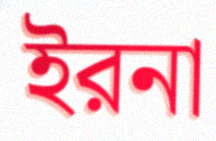
ইরনা